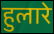
हुलारे